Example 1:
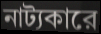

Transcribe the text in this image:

নাট্যকারে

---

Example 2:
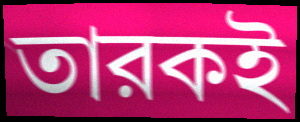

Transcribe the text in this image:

তারকই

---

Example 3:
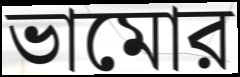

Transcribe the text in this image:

ভামোর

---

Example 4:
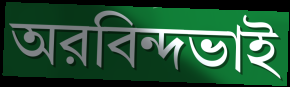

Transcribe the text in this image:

অরবিন্দভাই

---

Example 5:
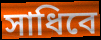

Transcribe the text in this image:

সাধিবে